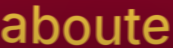
aboute